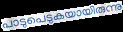
പാടുപെടുകയായിരുന്നു